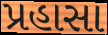
પ્રહાસા